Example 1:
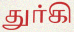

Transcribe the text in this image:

துர்கி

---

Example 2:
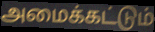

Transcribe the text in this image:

அமைக்கட்டும்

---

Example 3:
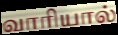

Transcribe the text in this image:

வாரியால்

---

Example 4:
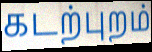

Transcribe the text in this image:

கடற்புறம்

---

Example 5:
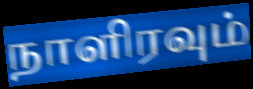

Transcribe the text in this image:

நாளிரவும்